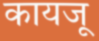
कायजू